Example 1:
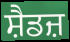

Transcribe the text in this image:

ਸ਼ੈਡਜ਼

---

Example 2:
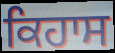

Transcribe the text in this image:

ਕਿਹਾਸ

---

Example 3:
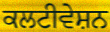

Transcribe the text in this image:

ਕਲਟੀਵੇਸ਼ਨ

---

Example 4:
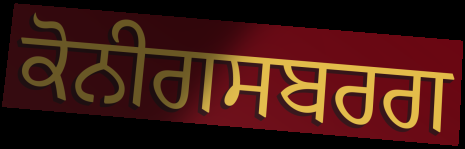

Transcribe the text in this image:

ਕੋਨੀਗਸਬਰਗ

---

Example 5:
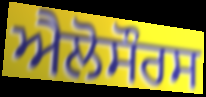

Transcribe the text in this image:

ਐਲੋਸੌਰਸ